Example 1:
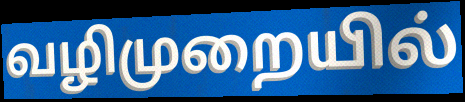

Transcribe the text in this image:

வழிமுறையில்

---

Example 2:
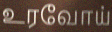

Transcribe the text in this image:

உரவோய்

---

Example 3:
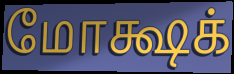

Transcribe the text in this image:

மோக்ஷக்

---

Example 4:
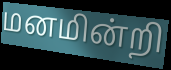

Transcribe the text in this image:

மனமின்றி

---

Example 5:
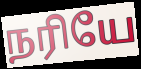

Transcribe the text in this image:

நரியே